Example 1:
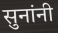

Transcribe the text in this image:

सुनांनी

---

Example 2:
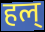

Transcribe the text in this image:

हल्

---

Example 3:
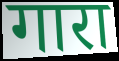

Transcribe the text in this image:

गारा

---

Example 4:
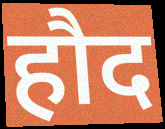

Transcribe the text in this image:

हौद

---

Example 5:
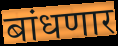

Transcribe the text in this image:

बांधणार